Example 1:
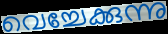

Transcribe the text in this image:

വെച്ചേക്കുന്നു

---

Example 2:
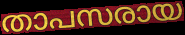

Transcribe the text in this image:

താപസരായ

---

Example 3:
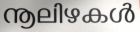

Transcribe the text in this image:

നൂലിഴകൾ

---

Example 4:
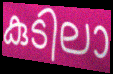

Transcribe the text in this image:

കുടിലാ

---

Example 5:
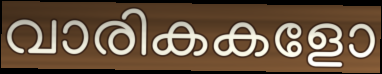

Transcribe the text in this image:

വാരികകളോ